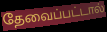
தேவைப்பட்டால்